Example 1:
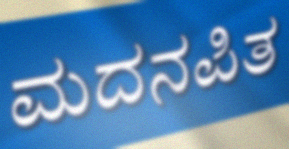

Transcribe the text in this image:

ಮದನಪಿತ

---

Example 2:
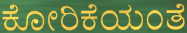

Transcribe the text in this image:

ಕೋರಿಕೆಯಂತೆ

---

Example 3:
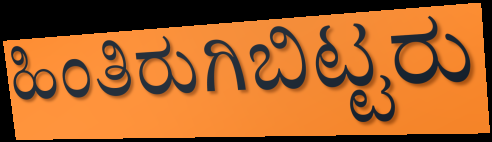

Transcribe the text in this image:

ಹಿಂತಿರುಗಿಬಿಟ್ಟರು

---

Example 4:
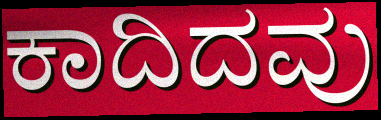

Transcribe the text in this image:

ಕಾದಿದವು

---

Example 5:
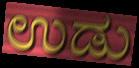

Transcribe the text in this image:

ಉಡು